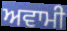
ਅਵਾਮੀ